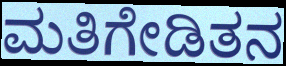
ಮತಿಗೇಡಿತನ